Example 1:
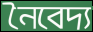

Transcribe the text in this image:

নৈবেদ্য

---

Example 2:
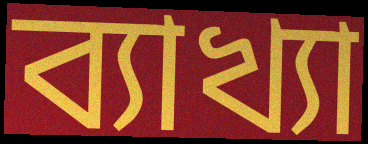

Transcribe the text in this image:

ব্যাখ্যা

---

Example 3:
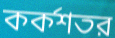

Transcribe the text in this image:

কর্কশতর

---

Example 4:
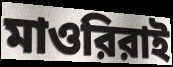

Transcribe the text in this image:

মাওরিরাই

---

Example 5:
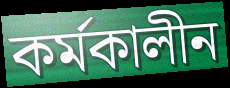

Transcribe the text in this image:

কর্মকালীন